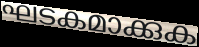
ഘടകമാക്കുക